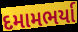
દમામભર્યા